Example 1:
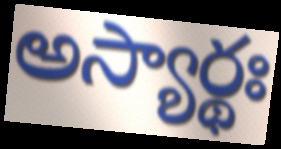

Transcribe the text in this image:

అస్యార్థః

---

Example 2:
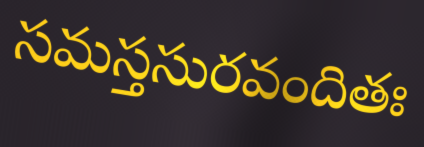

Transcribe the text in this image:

సమస్తసురవందితః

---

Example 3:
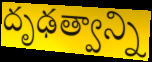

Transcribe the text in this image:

దృఢత్వాన్ని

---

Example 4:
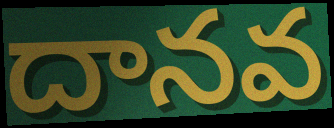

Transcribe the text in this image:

దానవ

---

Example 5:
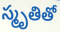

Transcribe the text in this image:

స్మృతితో